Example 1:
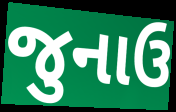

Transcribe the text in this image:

જુનાઉ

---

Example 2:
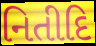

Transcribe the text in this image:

નિતીદિ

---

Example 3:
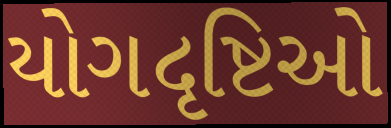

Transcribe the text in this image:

યોગદૃષ્ટિઓ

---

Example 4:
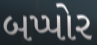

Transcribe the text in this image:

બપ્પોર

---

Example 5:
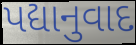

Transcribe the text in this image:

પદ્યાનુવાદ